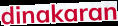
dinakaran